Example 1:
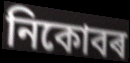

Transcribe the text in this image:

নিকোবৰ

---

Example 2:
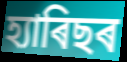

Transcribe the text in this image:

হ্যাৰিছৰ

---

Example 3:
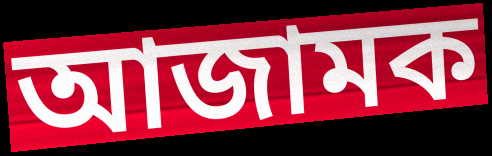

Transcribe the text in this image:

আজামক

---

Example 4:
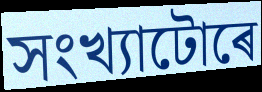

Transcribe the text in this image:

সংখ্যাটোৰে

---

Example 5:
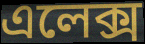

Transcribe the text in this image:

এলেক্স